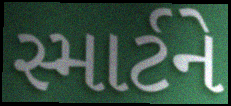
સ્માર્ટને